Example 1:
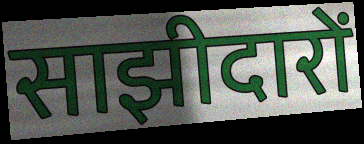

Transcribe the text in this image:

साझीदारों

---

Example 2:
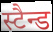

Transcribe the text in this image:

स्टैन्ड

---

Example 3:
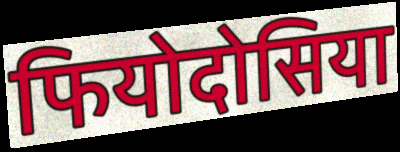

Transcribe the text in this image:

फियोदोसिया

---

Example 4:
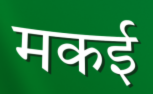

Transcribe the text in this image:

मकई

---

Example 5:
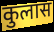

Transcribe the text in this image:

कुलास